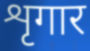
शृगार